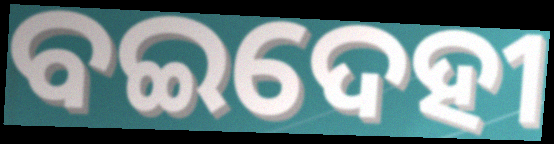
ବଇଦେହୀ